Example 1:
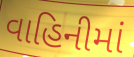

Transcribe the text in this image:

વાહિનીમાં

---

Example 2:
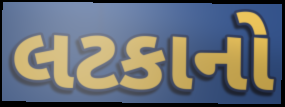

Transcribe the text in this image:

લટકાનો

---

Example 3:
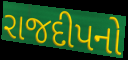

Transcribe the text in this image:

રાજદીપનો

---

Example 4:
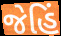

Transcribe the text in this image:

જેહિં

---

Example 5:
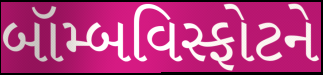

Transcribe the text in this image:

બૉમ્બવિસ્ફોટને